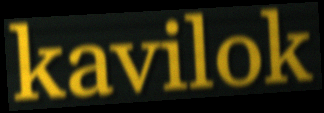
kavilok